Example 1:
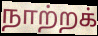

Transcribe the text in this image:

நாற்றக்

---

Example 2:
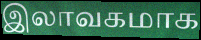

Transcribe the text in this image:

இலாவகமாக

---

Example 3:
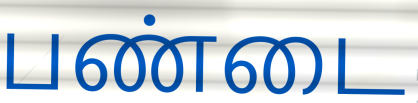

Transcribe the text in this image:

பண்டை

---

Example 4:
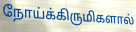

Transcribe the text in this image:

நோய்க்கிருமிகளால்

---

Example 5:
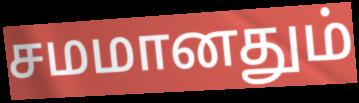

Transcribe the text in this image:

சமமானதும்